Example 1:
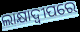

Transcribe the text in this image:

ଲାକ୍ଷାଦ୍ୱୀପରେ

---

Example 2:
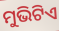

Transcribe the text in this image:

ମୁଭିଟିଏ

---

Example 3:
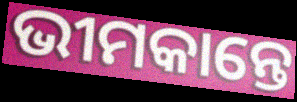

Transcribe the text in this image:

ଭୀମକାନ୍ତେ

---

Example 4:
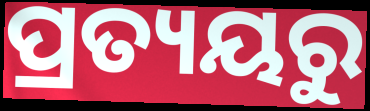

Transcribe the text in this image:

ପ୍ରତ୍ୟୟରୁ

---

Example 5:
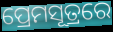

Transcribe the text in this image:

ପ୍ରେମସୂତ୍ରରେ